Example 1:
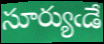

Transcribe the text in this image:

సూర్యుఁడే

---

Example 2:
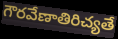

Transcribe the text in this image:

గౌరవేణాతిరిచ్యతే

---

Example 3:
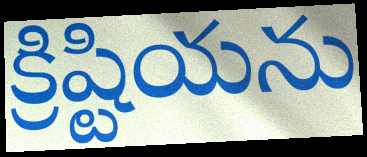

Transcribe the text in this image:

క్రిష్టియను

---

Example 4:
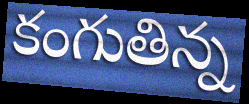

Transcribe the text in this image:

కంగుతిన్న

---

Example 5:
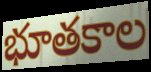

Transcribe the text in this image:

భూతకాల